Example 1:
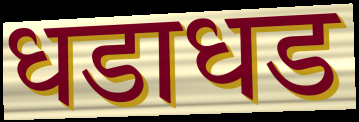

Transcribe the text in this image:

धडाधड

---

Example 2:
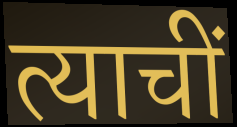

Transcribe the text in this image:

त्याचीं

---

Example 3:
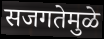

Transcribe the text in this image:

सजगतेमुळे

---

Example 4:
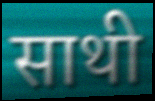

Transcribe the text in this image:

साथी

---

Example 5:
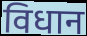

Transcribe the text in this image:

विधान